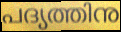
പദ്യത്തിനു